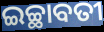
ଇଚ୍ଛାବତୀ